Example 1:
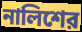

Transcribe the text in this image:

নালিশের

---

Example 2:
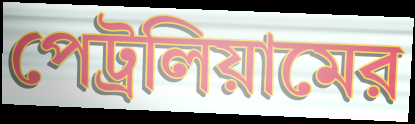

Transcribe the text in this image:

পেট্রলিয়ামের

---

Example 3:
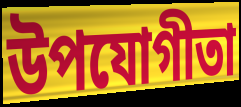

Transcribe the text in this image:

উপযোগীতা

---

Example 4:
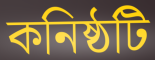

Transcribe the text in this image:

কনিষ্ঠটি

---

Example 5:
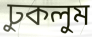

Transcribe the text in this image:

ঢুকলুম